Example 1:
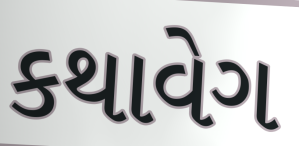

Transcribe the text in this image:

કથાવેગ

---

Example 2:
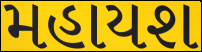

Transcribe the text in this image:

મહાયશ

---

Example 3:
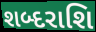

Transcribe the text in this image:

શબ્દરાશિ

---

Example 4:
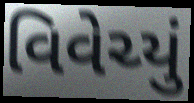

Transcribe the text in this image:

વિવેચ્યું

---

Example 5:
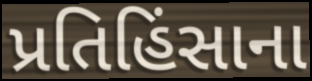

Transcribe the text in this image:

પ્રતિહિંસાના